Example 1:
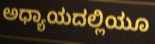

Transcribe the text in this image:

ಅಧ್ಯಾಯದಲ್ಲಿಯೂ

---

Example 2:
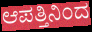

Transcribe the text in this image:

ಆಪತ್ತಿನಿಂದ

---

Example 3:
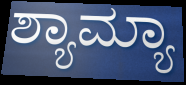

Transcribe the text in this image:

ಶ್ಯಾಮ್ಯಾ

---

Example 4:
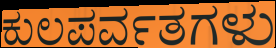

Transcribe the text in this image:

ಕುಲಪರ್ವತಗಳು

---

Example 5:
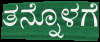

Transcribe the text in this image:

ತನ್ನೊಳಗೆ